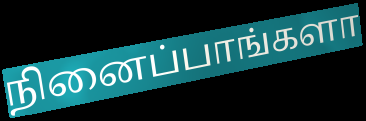
நினைப்பாங்களா